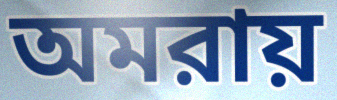
অমরায়